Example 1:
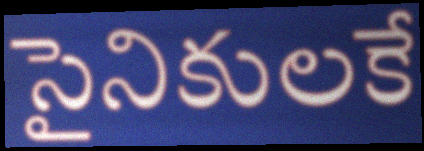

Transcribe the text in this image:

సైనికులకే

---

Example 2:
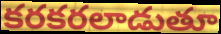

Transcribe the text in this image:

కరకరలాడుతూ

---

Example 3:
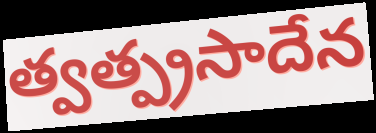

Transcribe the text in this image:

త్వత్ప్రసాదేన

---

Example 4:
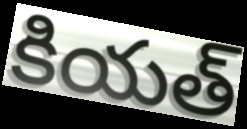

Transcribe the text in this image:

కియత్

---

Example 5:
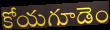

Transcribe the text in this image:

కోయగూడెం